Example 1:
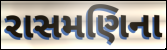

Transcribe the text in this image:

રાસમણિના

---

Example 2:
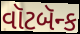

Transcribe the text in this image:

વૉટબૅન્ક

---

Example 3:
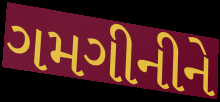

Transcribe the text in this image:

ગમગીનીને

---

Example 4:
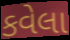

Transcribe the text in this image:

કવેલા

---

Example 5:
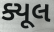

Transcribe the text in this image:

ક્યૂલ